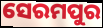
ସେରମପୁର